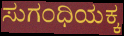
ಸುಗಂಧಿಯಕ್ಕ